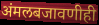
अंमलबजावणीही